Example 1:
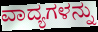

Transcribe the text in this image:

ವಾದ್ಯಗಳನ್ನು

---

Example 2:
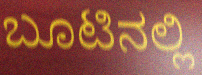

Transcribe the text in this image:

ಬೂಟಿನಲ್ಲಿ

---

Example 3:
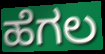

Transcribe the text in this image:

ಹೆಗಲ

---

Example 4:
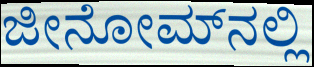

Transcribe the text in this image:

ಜೀನೋಮ್‌ನಲ್ಲಿ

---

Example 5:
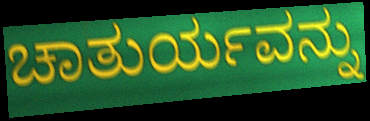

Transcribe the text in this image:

ಚಾತುರ್ಯವನ್ನು